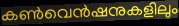
കൺവെൻഷനുകളിലും